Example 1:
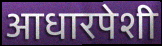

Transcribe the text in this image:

आधारपेशी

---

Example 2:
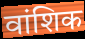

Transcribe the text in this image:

वांशिक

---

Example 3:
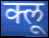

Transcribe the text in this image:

क्लू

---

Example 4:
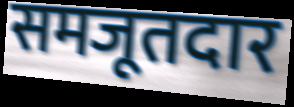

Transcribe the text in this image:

समजूतदार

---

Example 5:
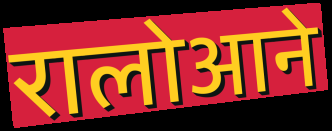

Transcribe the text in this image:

रालोआने